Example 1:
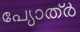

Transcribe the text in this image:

പ്യോത്ർ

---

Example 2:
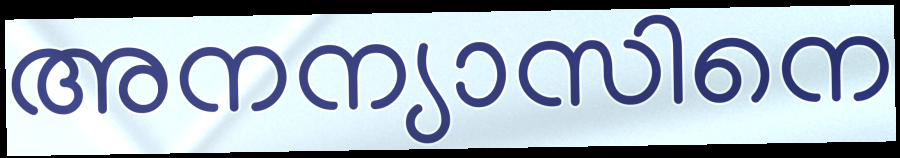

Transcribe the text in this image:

അനന്യാസിനെ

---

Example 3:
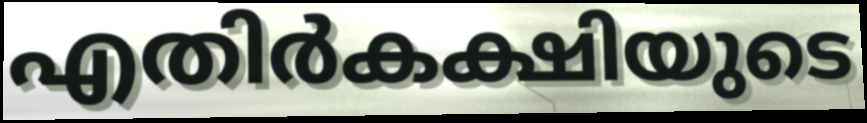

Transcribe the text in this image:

എതിർകക്ഷിയുടെ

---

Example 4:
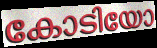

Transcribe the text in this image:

കോടിയോ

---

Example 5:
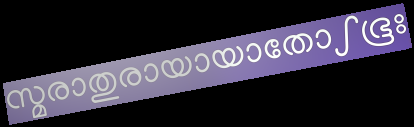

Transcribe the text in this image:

സ്മരാതുരായായാതോഽഭൂഃ